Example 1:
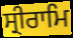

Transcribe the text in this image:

ਸ੍ਰੀਰਾਮਿ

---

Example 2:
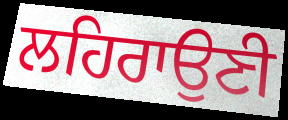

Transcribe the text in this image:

ਲਹਿਰਾਉਣੀ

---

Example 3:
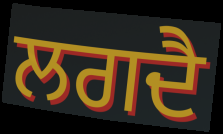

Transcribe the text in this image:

ਲਗਦੈ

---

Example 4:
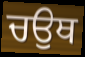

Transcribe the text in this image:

ਚਉਥ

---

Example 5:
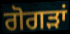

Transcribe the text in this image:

ਗੋਗੜਾਂ